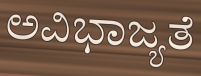
ಅವಿಭಾಜ್ಯತೆ